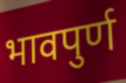
भावपुर्ण